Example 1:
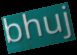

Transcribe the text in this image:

bhuj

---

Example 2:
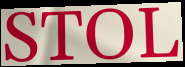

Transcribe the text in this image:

STOL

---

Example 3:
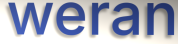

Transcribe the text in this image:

weran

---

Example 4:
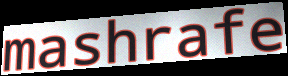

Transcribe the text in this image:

mashrafe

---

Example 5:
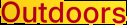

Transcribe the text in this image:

Outdoors